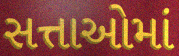
સત્તાઓમાં